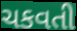
ચકવતી